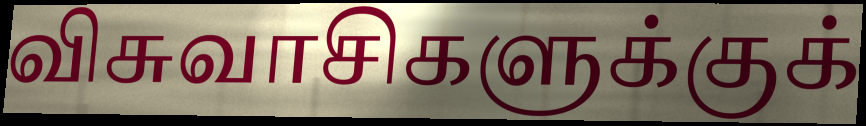
விசுவாசிகளுக்குக்